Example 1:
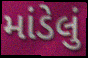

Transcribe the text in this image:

માંડેલું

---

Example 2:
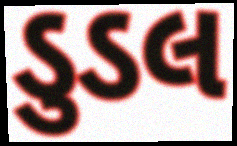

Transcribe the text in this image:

ડુડલ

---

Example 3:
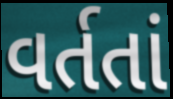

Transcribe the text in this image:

વર્તતાં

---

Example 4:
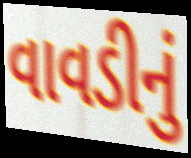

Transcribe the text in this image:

વાવડીનું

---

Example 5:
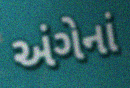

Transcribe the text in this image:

અંગેનાં